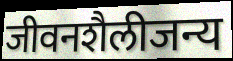
जीवनशैलीजन्य